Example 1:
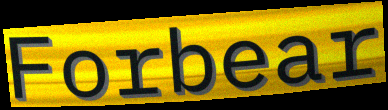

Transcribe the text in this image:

Forbear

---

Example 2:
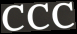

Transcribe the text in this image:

ccc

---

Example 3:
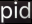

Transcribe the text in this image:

pid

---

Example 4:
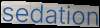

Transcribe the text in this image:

sedation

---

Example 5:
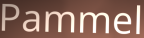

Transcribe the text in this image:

Pammel